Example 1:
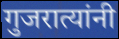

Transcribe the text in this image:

गुजरात्यांनी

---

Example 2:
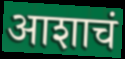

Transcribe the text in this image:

आशाचं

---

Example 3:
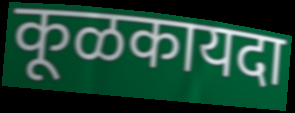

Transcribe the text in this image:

कूळकायदा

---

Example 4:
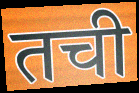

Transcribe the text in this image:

तची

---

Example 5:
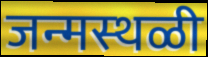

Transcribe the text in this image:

जन्मस्थळी